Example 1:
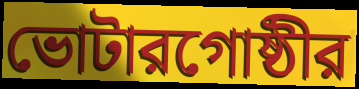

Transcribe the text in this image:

ভোটারগোষ্ঠীর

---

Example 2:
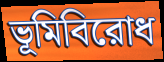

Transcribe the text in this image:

ভূমিবিরোধ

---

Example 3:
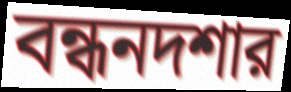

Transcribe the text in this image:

বন্ধনদশার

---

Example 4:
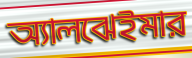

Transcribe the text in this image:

অ্যালঝেইমার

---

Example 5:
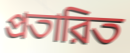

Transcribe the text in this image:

প্রতারিত